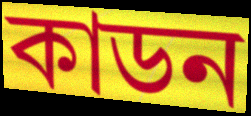
কাডন